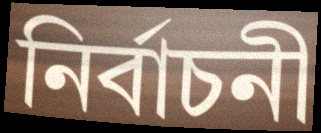
নির্বাচনী